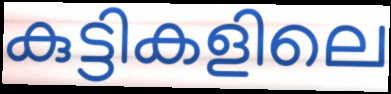
കുട്ടികളിലെ